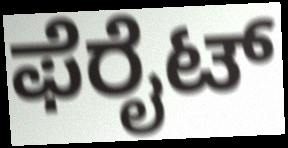
ಫೆರೈಟ್